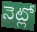
నెట్లో